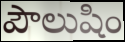
పౌలుషిం